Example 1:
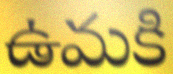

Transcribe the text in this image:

ఉమకి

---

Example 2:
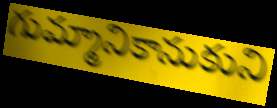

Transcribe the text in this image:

గుమ్మానికానుకుని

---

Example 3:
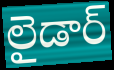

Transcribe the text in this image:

లైడార్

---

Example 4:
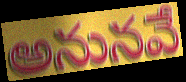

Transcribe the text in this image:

అనునవే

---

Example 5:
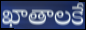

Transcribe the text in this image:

ఖాతాలకే